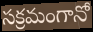
సక్రమంగానో